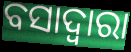
ବସାଦ୍ୱାରା